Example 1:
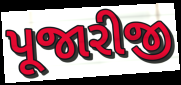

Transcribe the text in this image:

પૂજારીજી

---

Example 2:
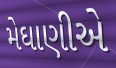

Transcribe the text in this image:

મેઘાણીએ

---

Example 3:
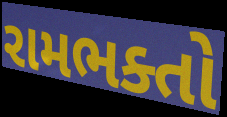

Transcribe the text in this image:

રામભક્તો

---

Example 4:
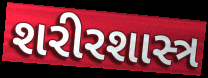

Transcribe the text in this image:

શરીરશાસ્ત્ર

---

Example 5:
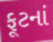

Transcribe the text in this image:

ફૂટનાં